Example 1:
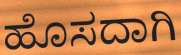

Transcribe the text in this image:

ಹೊಸದಾಗಿ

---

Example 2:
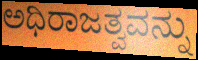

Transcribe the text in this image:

ಅಧಿರಾಜತ್ವವನ್ನು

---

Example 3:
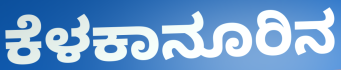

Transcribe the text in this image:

ಕೆಳಕಾನೂರಿನ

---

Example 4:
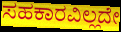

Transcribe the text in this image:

ಸಹಕಾರವಿಲ್ಲದೇ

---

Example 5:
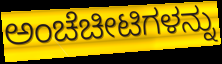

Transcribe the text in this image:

ಅಂಚೆಚೀಟಿಗಳನ್ನು